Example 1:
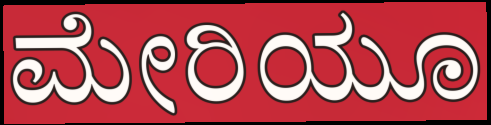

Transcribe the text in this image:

ಮೇರಿಯೂ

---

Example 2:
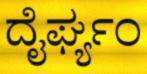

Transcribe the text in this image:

ದೈರ್ಘ್ಯಂ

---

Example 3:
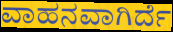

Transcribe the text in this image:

ವಾಹನವಾಗಿರ್ದೆ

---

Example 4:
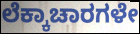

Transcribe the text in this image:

ಲೆಕ್ಕಾಚಾರಗಳೇ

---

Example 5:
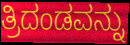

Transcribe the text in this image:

ತ್ರಿದಂಡವನ್ನು